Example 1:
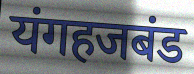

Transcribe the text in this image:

यंगहजबंड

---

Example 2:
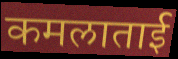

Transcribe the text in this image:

कमलाताई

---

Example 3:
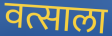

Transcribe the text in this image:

वत्साला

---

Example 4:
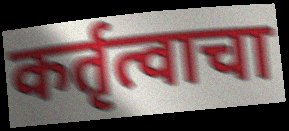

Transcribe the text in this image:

कर्तृत्वाचा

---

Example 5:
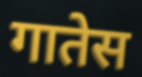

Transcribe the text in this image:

गातेस